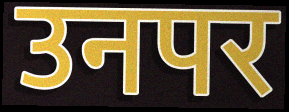
उनपर